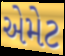
એમેટ